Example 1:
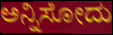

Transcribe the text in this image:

ಅನ್ನಿಸೋದು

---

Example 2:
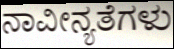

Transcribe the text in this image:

ನಾವೀನ್ಯತೆಗಳು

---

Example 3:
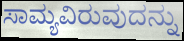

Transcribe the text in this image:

ಸಾಮ್ಯವಿರುವುದನ್ನು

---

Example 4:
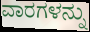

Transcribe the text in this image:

ವಾರಗಳನ್ನು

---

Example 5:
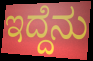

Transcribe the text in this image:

ಇದ್ದೆನು